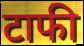
टाफी